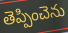
తెప్పించెను